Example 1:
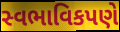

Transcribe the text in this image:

સ્વભાવિકપણે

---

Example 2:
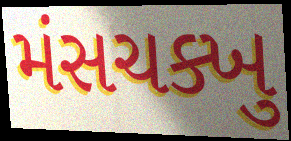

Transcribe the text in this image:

મંસચક્ખુ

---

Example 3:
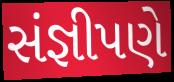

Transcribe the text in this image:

સંજ્ઞીપણે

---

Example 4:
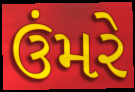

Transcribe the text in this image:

ઉંમરે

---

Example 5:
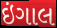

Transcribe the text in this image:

ઇંગાલ